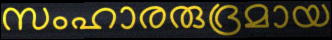
സംഹാരരുദ്രമായ